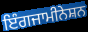
ਇੰਗਜਾਮੀਨੇਸ਼ਨ